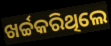
ଖର୍ଚ୍ଚକରିଥିଲେ